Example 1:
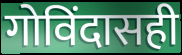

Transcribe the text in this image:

गोविंदासही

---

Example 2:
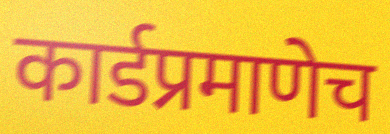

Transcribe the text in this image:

कार्डप्रमाणेच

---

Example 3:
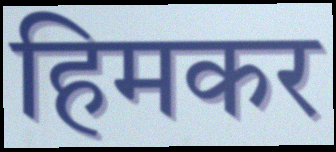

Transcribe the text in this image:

हिमकर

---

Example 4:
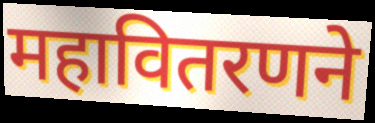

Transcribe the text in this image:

महावितरणने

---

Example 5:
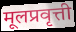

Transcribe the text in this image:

मूलप्रवृत्ती